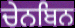
ਚੇਨਬਿਨ